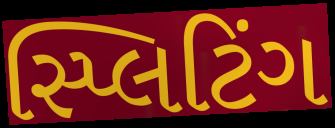
સ્પ્લિટિંગ